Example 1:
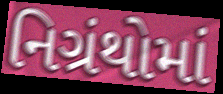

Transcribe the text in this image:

નિગ્રંથોમાં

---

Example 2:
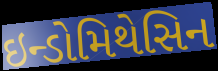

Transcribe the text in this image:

ઇન્ડોમિથેસિન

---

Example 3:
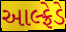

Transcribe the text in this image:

આલ્ફ્રેડે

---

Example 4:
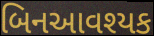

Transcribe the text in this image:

બિનઆવશ્યક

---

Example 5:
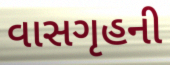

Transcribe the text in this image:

વાસગૃહની